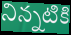
నిన్నటికి